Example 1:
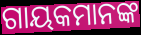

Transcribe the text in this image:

ଗାୟକମାନଙ୍କ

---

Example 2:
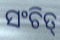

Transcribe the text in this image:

ସଂଚିତ୍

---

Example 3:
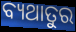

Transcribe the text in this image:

ବ୍ୟଥାତୁର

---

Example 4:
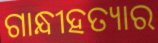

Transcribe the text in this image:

ଗାନ୍ଧୀହତ୍ୟାର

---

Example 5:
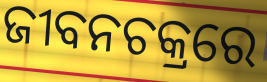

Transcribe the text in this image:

ଜୀବନଚକ୍ରରେ